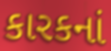
કારકનાં